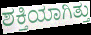
ಶಕ್ತಿಯಾಗಿತ್ತು